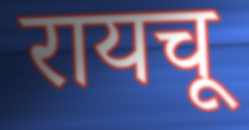
रायचू